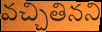
వచ్చితినని